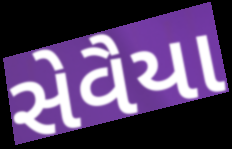
સેવૈયા